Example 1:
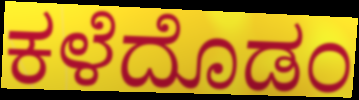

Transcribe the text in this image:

ಕಳೆದೊಡಂ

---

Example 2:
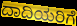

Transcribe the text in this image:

ದಾದಿಯರಿಗೆ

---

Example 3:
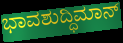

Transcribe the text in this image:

ಭಾವಶುದ್ಧಿಮಾನ್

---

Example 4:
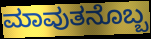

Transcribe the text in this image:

ಮಾವುತನೊಬ್ಬ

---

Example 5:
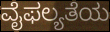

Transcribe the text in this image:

ವೈಫಲ್ಯತೆಯ